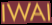
IWAI